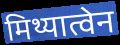
मिथ्यात्वेन